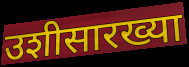
उशीसारख्या